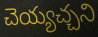
చెయ్యచ్చని